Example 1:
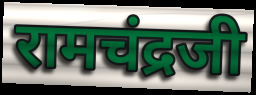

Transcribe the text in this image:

रामचंद्रजी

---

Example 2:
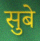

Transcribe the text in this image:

सुबे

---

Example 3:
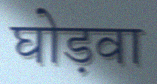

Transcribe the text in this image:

घोड़वा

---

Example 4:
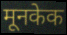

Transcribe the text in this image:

मूनकेक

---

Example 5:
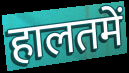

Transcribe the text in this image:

हालतमें